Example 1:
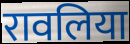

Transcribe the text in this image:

रावलिया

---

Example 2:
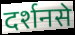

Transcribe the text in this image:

दर्शनसे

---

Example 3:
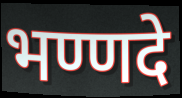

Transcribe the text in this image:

भण्णदे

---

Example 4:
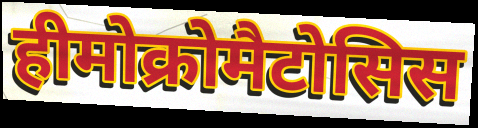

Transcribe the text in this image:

हीमोक्रोमैटोसिस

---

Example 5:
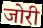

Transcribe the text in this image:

जोरी